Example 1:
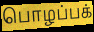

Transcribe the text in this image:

பொழப்பக்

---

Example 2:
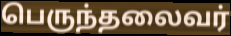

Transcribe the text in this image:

பெருந்தலைவர்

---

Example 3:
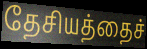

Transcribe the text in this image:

தேசியத்தைச்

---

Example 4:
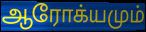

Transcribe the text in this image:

ஆரோக்யமும்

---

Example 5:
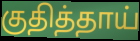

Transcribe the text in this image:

குதித்தாய்